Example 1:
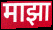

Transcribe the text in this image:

माझा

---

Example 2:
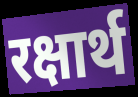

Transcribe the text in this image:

रक्षार्थ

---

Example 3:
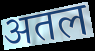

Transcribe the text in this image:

अतल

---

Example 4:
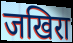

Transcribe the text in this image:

जखिरा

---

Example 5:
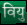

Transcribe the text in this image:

वियु